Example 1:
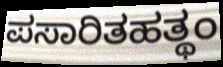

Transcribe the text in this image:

ಪಸಾರಿತಹತ್ಥಂ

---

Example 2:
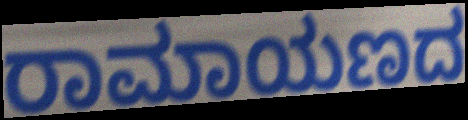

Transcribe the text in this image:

ರಾಮಾಯಣದ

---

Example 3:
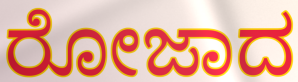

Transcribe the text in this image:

ರೋಜಾದ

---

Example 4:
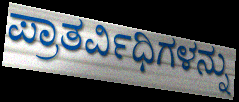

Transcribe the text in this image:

ಪ್ರಾತರ್ವಿಧಿಗಳನ್ನು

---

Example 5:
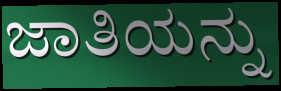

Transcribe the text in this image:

ಜಾತಿಯನ್ನು